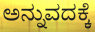
ಅನ್ನುವದಕ್ಕೆ